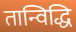
तान्विद्धि